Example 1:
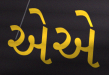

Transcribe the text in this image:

એએ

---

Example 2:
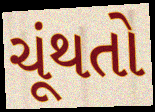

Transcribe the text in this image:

ચૂંથતો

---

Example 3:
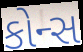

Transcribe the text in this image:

કોન્સ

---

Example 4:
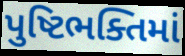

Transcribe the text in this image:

પુષ્ટિભક્તિમાં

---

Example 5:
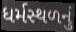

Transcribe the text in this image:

ધર્મસ્થળનું